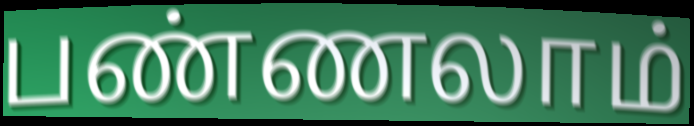
பண்ணலாம்